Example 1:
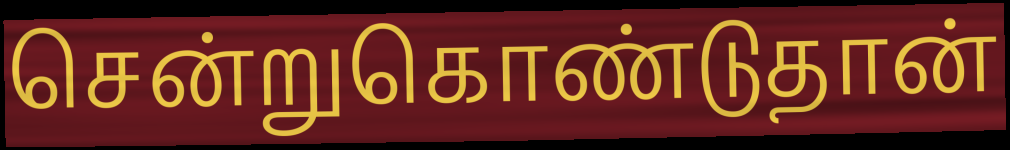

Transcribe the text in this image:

சென்றுகொண்டுதான்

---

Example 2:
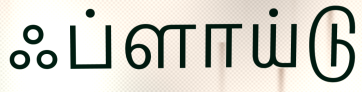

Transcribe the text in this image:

ஃப்ளாய்டு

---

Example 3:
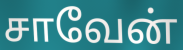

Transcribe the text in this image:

சாவேன்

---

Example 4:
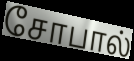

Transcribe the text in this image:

சோபால்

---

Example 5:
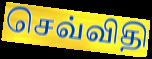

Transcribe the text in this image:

செவ்விதி